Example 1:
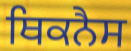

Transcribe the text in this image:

ਥਿਕਨੈਸ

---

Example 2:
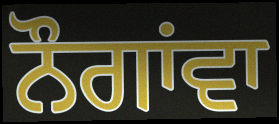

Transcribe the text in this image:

ਨੌਗਾਂਵਾ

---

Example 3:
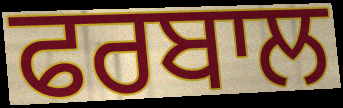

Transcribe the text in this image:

ਫਰਬਾਲ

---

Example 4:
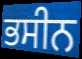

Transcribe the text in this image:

ਭਸੀਨ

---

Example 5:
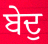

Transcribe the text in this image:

ਬੇਦੁ